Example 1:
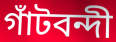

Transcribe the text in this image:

গাঁটবন্দী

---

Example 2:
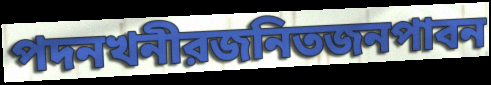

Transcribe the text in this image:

পদনখনীরজনিতজনপাবন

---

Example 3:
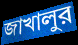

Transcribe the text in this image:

জাখালুর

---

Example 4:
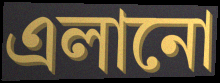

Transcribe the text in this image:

এলানো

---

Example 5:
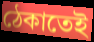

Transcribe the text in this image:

ঠেকাতেই